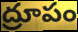
ద్రూపం